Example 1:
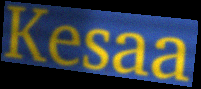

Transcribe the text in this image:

Kesaa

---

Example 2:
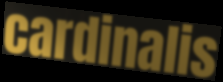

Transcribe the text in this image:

cardinalis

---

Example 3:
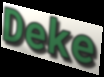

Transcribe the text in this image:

Deke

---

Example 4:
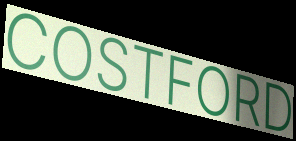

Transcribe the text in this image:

COSTFORD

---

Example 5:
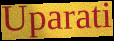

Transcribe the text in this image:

Uparati